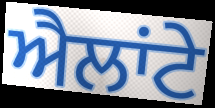
ਐਲਾਂਟੇ